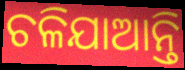
ଚଳିଯାଆନ୍ତି